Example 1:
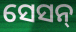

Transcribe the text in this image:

ସେସନ୍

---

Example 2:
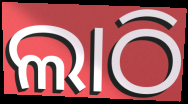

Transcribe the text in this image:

ଲାଠି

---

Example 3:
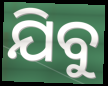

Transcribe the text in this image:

ଯିବୁ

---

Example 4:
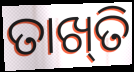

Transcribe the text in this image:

ତାଖ୍‍ତି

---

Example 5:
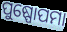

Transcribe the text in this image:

ପୁଷ୍ପୋପମା